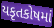
યકૃતકોષમાં